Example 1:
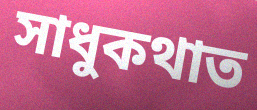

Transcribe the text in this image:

সাধুকথাত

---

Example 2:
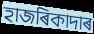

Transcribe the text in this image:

হাজৰিকাদাৰ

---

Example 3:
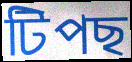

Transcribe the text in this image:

টিপছ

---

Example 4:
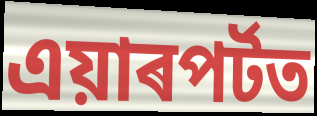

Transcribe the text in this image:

এয়াৰপৰ্টত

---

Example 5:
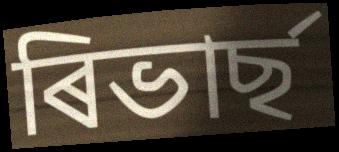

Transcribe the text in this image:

ৰিভাৰ্ছ